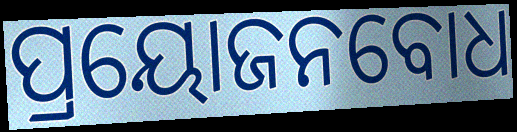
ପ୍ରୟୋଜନବୋଧ